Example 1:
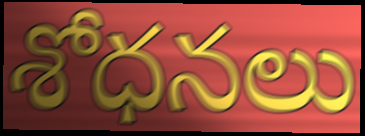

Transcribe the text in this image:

శోధనలు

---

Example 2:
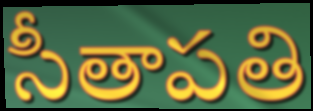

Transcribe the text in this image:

సీతాపతి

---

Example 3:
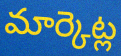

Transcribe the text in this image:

మార్కెట్ల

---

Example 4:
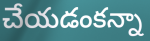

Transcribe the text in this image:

చేయడంకన్నా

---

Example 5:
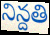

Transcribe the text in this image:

నిన్దతి